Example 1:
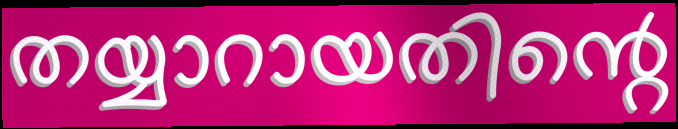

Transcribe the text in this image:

തയ്യാറായതിന്റെ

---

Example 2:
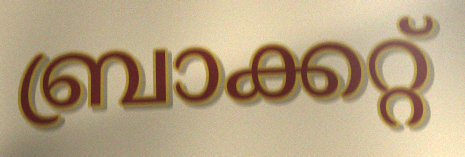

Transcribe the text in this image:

ബ്രാക്കറ്റ്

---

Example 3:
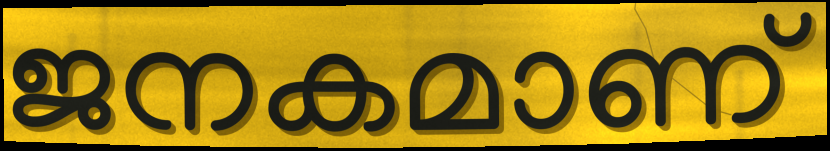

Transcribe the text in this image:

ജനകമാണ്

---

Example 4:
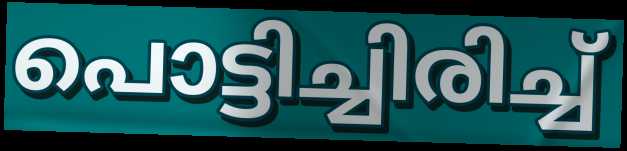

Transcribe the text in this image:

പൊട്ടിച്ചിരിച്ച്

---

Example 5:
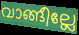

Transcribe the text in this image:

വാങ്ങീല്ലേ